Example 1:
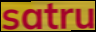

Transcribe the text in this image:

satru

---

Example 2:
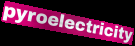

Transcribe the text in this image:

pyroelectricity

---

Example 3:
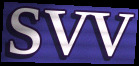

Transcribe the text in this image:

svv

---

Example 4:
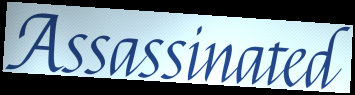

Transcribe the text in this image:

Assassinated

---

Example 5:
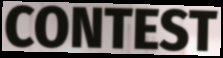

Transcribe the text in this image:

CONTEST